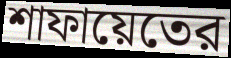
শাফায়েতের